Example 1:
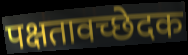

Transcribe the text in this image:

पक्षतावच्छेदक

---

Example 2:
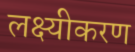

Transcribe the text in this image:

लक्ष्यीकरण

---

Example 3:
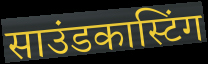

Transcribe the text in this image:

साउंडकास्टिंग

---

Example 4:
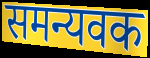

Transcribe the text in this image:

समन्यवक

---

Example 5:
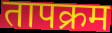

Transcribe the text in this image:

तापक्रम